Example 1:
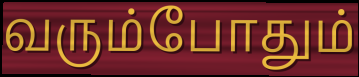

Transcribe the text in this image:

வரும்போதும்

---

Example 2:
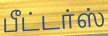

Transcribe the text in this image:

பீட்டர்ஸ்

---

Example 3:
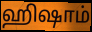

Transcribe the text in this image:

ஹிஷாம்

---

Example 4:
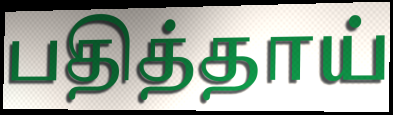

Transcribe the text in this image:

பதித்தாய்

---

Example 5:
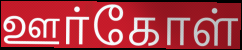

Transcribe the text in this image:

ஊர்கோள்